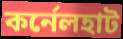
কর্নেলহাট